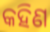
କହିଣ